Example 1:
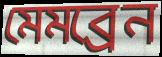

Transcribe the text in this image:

মেমব্ৰেন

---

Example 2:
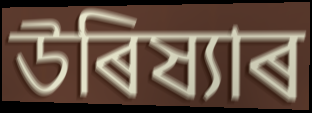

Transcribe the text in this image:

উৰিষ্যাৰ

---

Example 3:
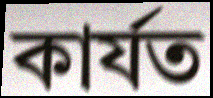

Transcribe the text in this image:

কাৰ্যত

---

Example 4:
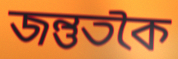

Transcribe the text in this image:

জন্তুতকৈ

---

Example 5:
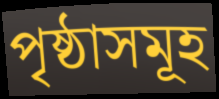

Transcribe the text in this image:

পৃষ্ঠাসমূহ